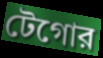
টেগোর